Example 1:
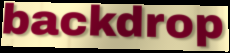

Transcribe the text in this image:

backdrop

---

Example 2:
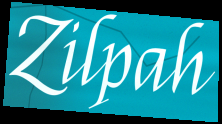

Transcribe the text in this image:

Zilpah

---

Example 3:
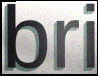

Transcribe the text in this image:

bri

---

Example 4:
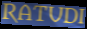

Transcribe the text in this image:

RATUDI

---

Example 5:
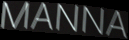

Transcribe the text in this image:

MANNA